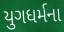
યુગધર્મના